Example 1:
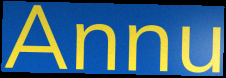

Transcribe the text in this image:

Annu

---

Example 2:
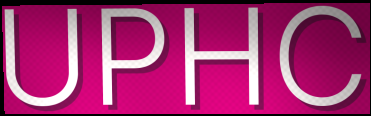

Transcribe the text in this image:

UPHC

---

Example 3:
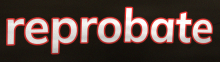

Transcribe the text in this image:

reprobate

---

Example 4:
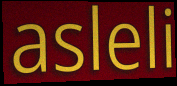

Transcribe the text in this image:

asleli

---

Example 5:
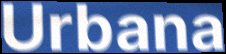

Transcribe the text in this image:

Urbana